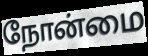
நோன்மை